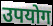
उपयोग